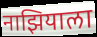
नाझियाला